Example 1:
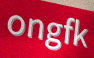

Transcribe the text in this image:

ongfk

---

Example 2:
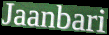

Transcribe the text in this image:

Jaanbari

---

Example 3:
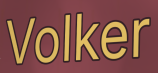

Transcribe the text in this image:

Volker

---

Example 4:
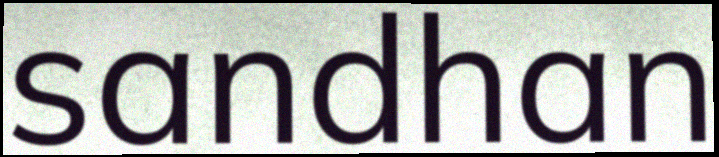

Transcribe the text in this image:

sandhan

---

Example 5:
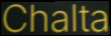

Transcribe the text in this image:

Chalta